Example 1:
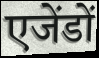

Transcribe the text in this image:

एजेंडों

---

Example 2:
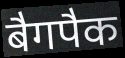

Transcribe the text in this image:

बैगपैक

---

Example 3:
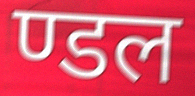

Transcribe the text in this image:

ण्डल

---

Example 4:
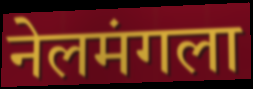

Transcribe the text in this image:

नेलमंगला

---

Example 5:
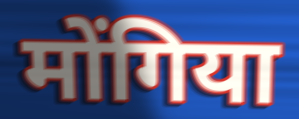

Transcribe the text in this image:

मोंगिया